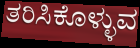
ತರಿಸಿಕೊಳ್ಳುವ